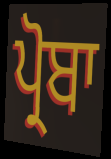
ਪ੍ਰੋਬਾ